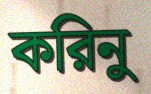
করিনু